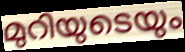
മുറിയുടെയും